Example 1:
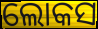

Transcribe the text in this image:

ଲୋକସ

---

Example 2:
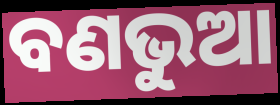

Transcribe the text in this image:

ବଣଭୁଆ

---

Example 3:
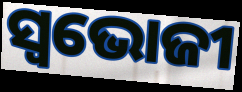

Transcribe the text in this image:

ସ୍ଵଭୋଜୀ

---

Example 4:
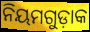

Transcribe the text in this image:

ନିୟମଗୁଡ଼ାକ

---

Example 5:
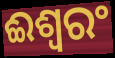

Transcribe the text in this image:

ଈଶ୍ୱରଂ